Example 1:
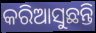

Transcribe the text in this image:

କରିଆସୁଛନ୍ତି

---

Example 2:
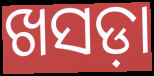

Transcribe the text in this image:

ଖସଡ଼ା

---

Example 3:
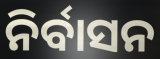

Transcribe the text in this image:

ନିର୍ବାସନ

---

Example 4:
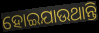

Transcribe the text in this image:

ହୋଇଯାଉଥାନ୍ତି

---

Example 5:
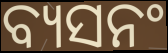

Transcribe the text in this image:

ବ୍ୟସନଂ